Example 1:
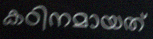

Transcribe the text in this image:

കഠിനമായത്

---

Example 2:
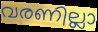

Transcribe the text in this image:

വരണില്ലാ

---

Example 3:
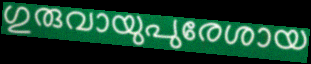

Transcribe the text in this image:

ഗുരുവായുപുരേശായ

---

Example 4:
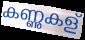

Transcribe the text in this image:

കണ്ണുകള്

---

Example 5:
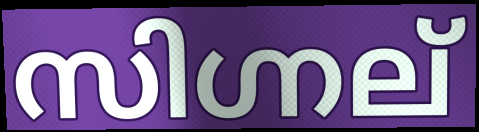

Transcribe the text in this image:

സിഗ്നല്